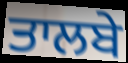
ਤਾਲਬੇ